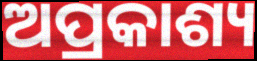
ଅପ୍ରକାଶ୍ୟ